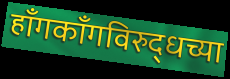
हाँगकाँगविरुद्धच्या